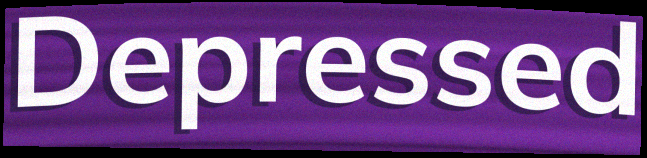
Depressed